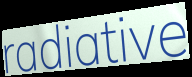
radiative